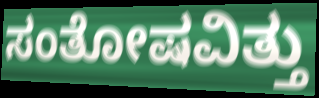
ಸಂತೋಷವಿತ್ತು